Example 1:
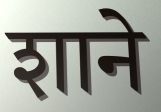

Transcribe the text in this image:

शाने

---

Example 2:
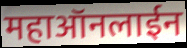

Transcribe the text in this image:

महाऑनलाईन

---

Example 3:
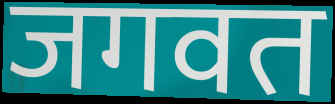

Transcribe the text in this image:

जगवत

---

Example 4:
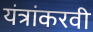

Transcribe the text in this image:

यंत्रांकरवी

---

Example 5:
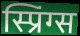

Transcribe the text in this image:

स्प्रिंग्स